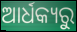
ଆର୍ଧକ୍ୟରୁ